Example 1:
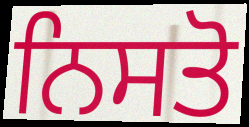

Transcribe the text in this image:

ਨਿਸਤੋ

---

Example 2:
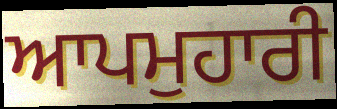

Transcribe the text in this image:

ਆਪਮੁਹਾਰੀ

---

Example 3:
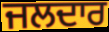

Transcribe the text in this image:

ਜਲਦਾਰ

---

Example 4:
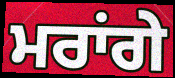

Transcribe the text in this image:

ਮਰਾਂਗੇ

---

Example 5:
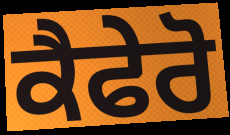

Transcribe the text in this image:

ਕੈਫੇਰੋ